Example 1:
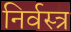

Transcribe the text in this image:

निर्वस्त्र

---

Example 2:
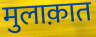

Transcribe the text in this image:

मुलाक़ात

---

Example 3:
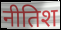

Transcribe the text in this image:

नीतिश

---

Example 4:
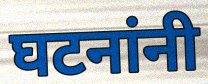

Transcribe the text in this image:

घटनांनी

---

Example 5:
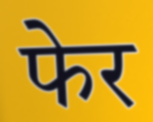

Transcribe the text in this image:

फेर